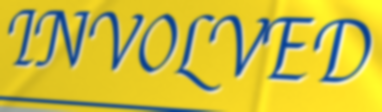
INVOLVED